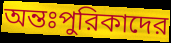
অন্তঃপুরিকাদের